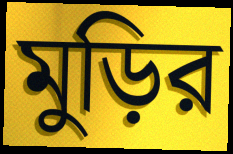
মুড়ির